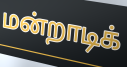
மன்றாடிக்